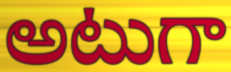
అటుగా